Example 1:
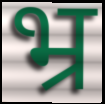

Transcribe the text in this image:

भ्र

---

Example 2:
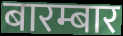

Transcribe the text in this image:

बारम्बार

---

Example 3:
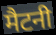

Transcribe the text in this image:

मैटनी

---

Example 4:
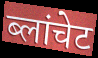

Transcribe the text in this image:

ब्लांचेट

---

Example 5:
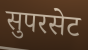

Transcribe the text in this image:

सुपरसेट